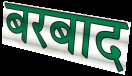
बरबाद